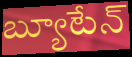
బ్యూటేన్